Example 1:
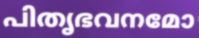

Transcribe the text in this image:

പിതൃഭവനമോ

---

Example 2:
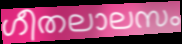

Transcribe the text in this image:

ഗീതലാലസം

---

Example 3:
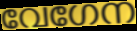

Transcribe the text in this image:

വേഗേന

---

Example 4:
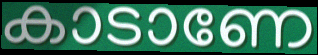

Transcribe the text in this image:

കാടാണേ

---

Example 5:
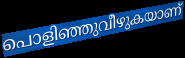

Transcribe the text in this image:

പൊളിഞ്ഞുവീഴുകയാണ്